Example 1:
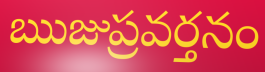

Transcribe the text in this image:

ఋజుప్రవర్తనం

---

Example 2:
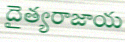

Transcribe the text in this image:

దైత్యరాజాయ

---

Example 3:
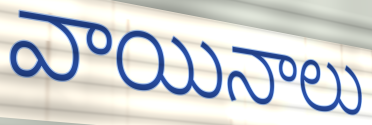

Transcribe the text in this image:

వాయినాలు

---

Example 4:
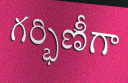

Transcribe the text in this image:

గర్భిణీగా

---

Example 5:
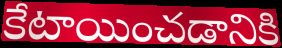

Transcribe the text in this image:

కేటాయించడానికి